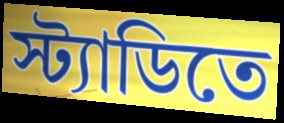
স্ট্যাডিতে